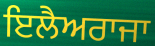
ਇਲੈਅਰਾਜਾ